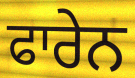
ਫਾਰੇਨ